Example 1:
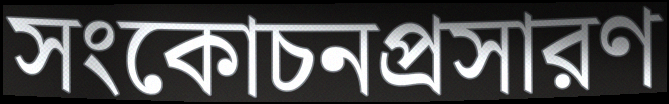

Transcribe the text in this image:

সংকোচনপ্রসারণ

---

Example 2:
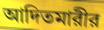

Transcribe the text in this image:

আদিতমারীর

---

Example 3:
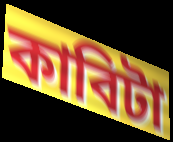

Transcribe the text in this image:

কাবিটা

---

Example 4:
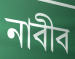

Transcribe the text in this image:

নাবীব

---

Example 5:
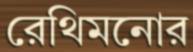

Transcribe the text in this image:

রেথিমনোর